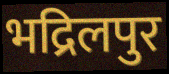
भद्रिलपुर